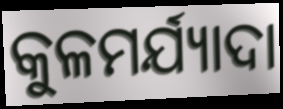
କୁଳମର୍ଯ୍ୟାଦା